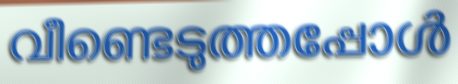
വീണ്ടെടുത്തപ്പോൾ